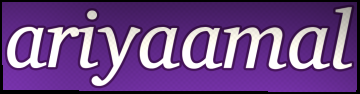
ariyaamal